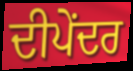
ਦੀਪੇਂਦਰ